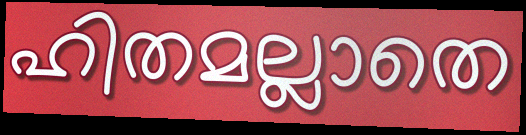
ഹിതമല്ലാതെ